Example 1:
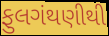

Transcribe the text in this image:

ફુલગંથણીથી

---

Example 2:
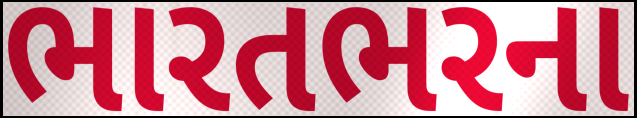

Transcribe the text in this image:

ભારતભરના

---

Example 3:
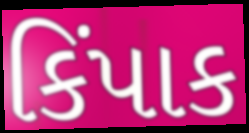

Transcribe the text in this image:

કિંપાક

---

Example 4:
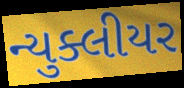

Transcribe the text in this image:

ન્યુક્લીયર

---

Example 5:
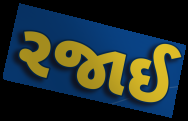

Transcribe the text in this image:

રજાઈ